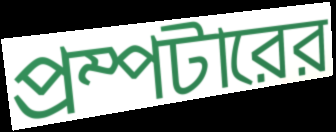
প্রম্পটারের